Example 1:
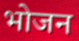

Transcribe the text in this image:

भोजन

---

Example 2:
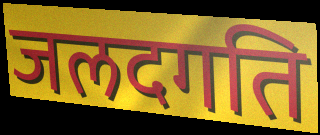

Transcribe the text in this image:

जलदगति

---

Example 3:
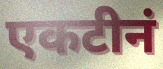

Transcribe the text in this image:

एकटीनं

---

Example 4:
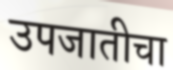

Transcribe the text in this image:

उपजातीचा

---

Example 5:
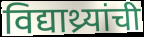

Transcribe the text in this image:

विद्याथ्र्यांची